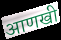
आणखी